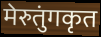
मेरुतुंगकृत